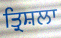
ਤ੍ਰਿਸ਼ਲਾ